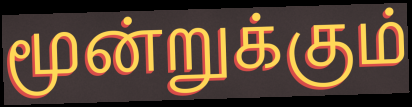
மூன்றுக்கும்